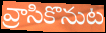
వ్రాసికొనుట